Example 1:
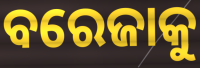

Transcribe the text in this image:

ବରେଜାକୁ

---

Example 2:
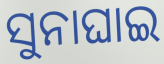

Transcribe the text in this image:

ସୁନାଘାଇ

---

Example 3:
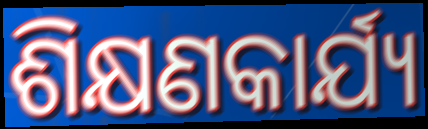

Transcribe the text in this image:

ଶିକ୍ଷଣକାର୍ଯ୍ୟ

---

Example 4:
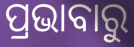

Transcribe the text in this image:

ପ୍ରଭାବାରୁ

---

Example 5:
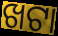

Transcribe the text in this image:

ଖଟା